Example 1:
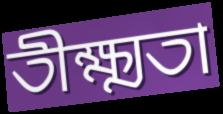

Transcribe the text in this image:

তীক্ষ্মতা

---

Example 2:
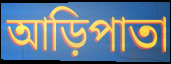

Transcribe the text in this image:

আড়িপাতা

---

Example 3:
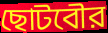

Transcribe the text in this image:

ছোটবৌর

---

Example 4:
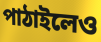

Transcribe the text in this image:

পাঠাইলেও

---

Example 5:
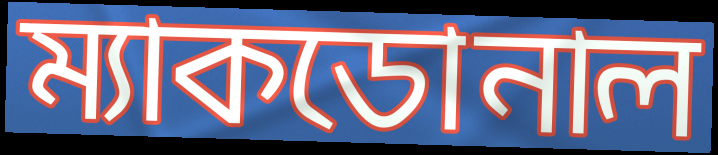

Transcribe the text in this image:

ম্যাকডোনাল